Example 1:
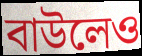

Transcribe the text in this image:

বাউলেও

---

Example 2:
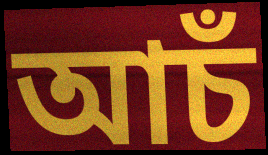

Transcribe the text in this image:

আচঁ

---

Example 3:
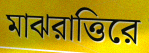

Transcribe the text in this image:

মাঝরাত্তিরে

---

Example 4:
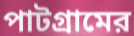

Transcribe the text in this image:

পাটগ্রামের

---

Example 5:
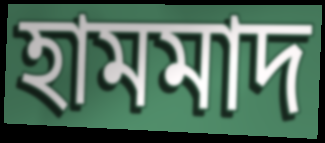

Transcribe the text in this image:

হামমাদ